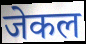
जेकल